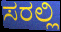
ಸರಲ್ಲಿ